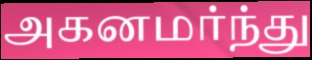
அகனமர்ந்து